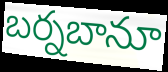
బర్నబానూ